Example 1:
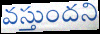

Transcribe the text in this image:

వస్తుందని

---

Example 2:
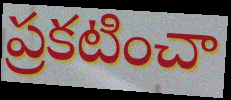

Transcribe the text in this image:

ప్రకటించా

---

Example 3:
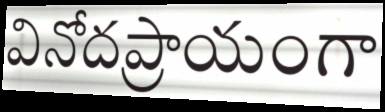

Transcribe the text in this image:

వినోదప్రాయంగా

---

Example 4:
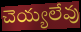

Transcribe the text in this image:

చెయ్యలేవు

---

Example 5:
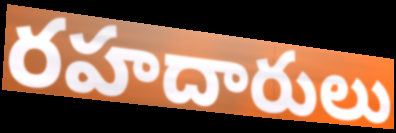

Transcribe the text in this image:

రహదారులు